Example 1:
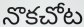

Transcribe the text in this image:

నొకచోట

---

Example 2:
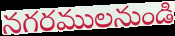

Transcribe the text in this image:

నగరములనుండి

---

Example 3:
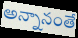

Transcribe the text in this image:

అన్నానంతే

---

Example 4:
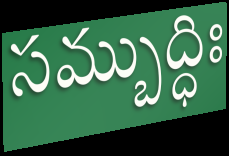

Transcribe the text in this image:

సమ్బుద్ధిః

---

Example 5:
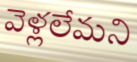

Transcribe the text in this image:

వెళ్లలేమని